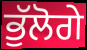
ਭੁੱਲੋਗੇ